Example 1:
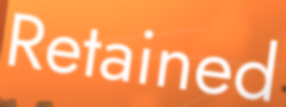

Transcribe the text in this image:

Retained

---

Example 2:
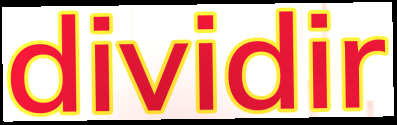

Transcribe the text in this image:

dividir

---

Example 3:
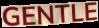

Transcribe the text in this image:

GENTLE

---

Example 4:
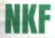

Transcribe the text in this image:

NKF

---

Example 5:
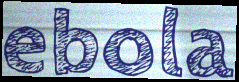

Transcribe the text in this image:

ebola